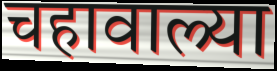
चहावाल्या